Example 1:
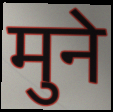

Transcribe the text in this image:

मुने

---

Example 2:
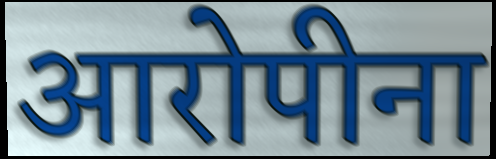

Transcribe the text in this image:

आरोपीना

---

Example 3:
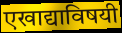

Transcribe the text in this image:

एखाद्याविषयी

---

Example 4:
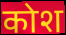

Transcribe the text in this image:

कोश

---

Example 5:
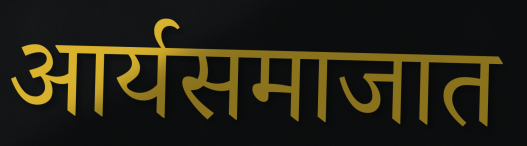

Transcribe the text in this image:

आर्यसमाजात